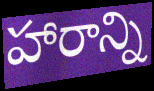
హారాన్ని